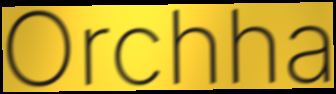
Orchha